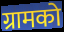
ग्रामको